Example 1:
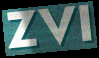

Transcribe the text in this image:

ZVI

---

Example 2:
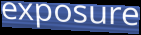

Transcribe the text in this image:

exposure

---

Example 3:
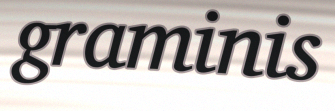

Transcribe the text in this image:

graminis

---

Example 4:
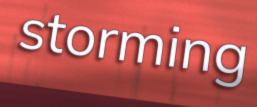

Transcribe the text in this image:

storming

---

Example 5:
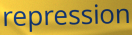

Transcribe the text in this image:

repression